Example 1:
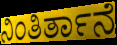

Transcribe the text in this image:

ನಿಂತಿರ್ತಾನೆ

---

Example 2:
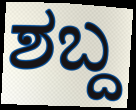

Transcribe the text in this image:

ಶಬ್ದ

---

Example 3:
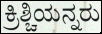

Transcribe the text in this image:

ಕ್ರಿಶ್ಚಿಯನ್ನರು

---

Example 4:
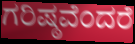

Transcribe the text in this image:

ಗರಿಷ್ಠವೆಂದರೆ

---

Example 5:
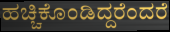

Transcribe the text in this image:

ಹಚ್ಚಿಕೊಂಡಿದ್ದರೆಂದರೆ